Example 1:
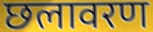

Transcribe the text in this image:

छलावरण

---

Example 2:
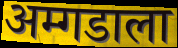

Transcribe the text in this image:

अम्गडाला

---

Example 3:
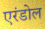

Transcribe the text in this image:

एरंडोल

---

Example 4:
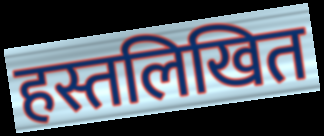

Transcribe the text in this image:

हस्तलिखित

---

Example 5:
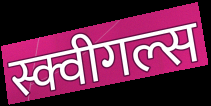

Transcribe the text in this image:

स्क्वीगल्स